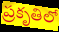
ప్రకృతిలో